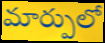
మార్పులో